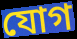
যোগ